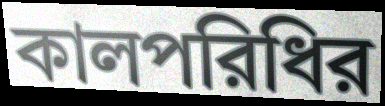
কালপরিধির